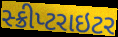
સ્ક્રીપ્ટરાઇટર